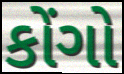
કોંગો